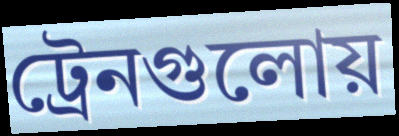
ট্রেনগুলোয়